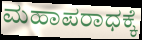
ಮಹಾಪರಾಧಕ್ಕೆ